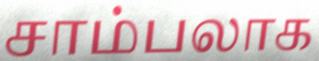
சாம்பலாக